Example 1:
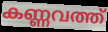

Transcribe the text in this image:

കണ്ണവത്ത്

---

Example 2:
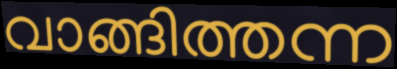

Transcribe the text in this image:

വാങ്ങിത്തന്ന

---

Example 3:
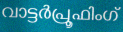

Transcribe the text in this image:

വാട്ടർപ്രൂഫിംഗ്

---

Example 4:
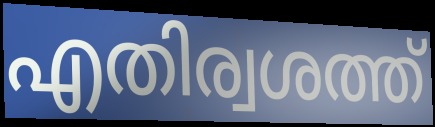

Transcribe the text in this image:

എതിര്വശത്ത്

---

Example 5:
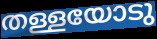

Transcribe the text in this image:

തള്ളയോടു